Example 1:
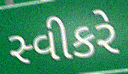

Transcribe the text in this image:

સ્વીકરે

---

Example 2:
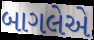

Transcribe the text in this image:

બાગલેએ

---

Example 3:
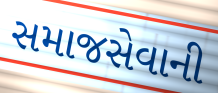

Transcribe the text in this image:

સમાજસેવાની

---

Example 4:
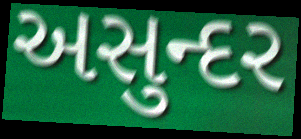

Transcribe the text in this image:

અસુન્દર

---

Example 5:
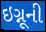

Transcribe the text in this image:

ઇગ્નૂની